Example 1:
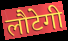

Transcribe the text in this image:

लौटेगी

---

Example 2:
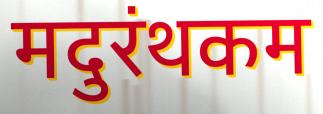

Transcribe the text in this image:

मदुरंथकम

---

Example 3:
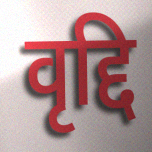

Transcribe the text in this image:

वृद्दि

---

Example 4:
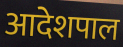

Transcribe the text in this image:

आदेशपाल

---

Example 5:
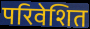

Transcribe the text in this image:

परिवेशित